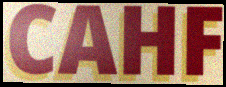
CAHF